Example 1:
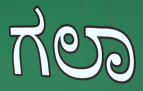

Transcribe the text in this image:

ಗಲಾ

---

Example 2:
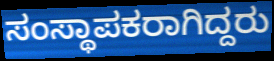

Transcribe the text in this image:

ಸಂಸ್ಥಾಪಕರಾಗಿದ್ದರು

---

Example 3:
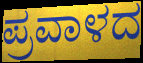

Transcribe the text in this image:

ಪ್ರವಾಳದ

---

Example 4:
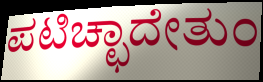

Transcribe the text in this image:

ಪಟಿಚ್ಛಾದೇತುಂ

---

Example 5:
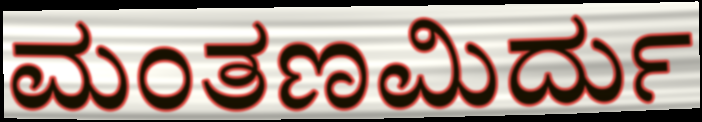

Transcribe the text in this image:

ಮಂತಣಮಿರ್ದು